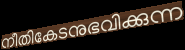
നീതികേടനുഭവിക്കുന്ന